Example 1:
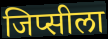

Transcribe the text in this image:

जिप्सीला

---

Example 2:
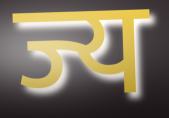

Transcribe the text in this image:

ज्य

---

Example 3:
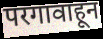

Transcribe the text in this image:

परगावाहून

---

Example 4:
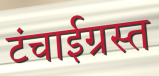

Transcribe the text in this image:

टंचाईग्रस्त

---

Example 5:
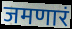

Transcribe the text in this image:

जमणारं